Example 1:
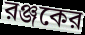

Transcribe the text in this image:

রঞ্জকের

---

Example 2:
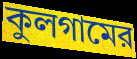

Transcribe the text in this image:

কুলগামের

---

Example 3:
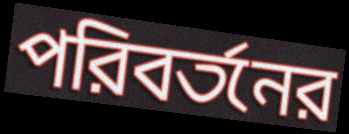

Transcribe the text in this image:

পরিবর্তনের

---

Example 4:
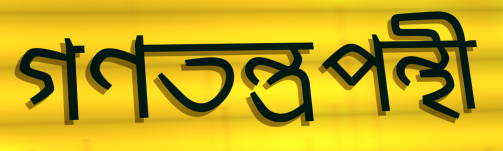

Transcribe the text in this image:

গণতন্ত্রপন্থী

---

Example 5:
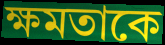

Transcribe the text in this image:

ক্ষমতাকে